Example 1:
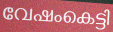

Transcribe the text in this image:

വേഷംകെട്ടി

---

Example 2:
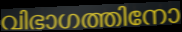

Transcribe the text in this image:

വിഭാഗത്തിനോ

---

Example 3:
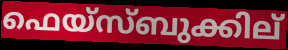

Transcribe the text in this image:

ഫെയ്സ്ബുക്കില്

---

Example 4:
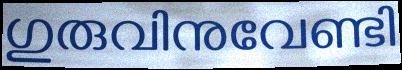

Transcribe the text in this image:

ഗുരുവിനുവേണ്ടി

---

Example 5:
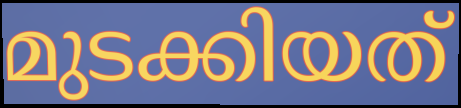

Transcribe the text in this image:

മുടക്കിയത്